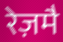
रेज़मै